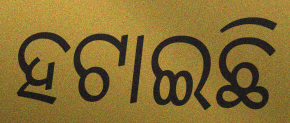
ହଟାଇଛି